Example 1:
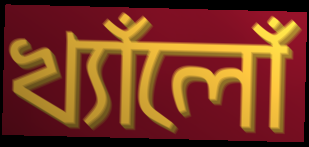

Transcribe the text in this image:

খ্যাঁলোঁ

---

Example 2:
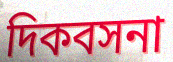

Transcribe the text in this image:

দিকবসনা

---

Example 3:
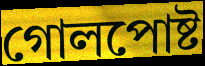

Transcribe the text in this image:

গোলপোষ্ট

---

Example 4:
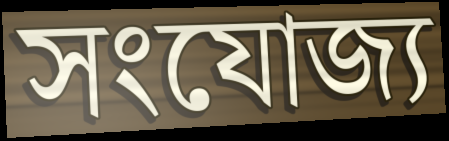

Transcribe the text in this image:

সংযোজ্য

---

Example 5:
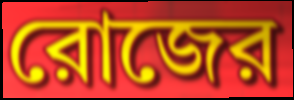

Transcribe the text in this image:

রোজের